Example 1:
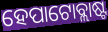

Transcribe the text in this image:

ହେପାଟୋବ୍ଲାଷ୍ଟ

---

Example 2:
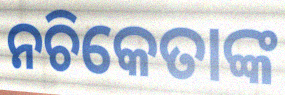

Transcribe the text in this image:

ନଚିକେତାଙ୍କ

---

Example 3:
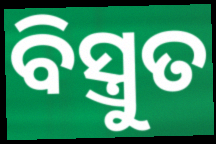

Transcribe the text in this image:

ବିସ୍ତ୍ରୁତ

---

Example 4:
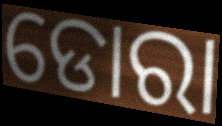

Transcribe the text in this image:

ଡୋରା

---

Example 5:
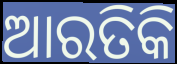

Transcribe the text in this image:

ଆରତିକି